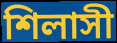
শিলাসী